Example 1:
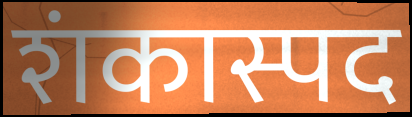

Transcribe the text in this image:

शंकास्पद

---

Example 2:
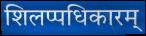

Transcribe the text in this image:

शिलप्पधिकारम्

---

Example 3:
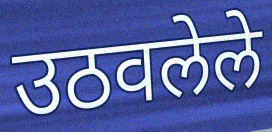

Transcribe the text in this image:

उठवलेले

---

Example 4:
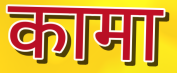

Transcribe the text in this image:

कामा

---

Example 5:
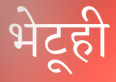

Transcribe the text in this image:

भेटूही